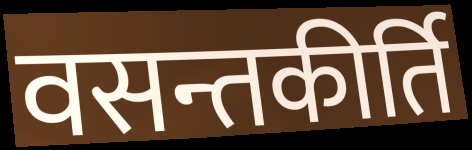
वसन्तकीर्ति